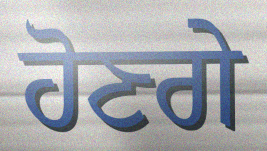
ਹੋਣਗੇ